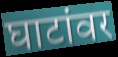
घाटांवर